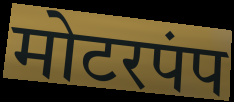
मोटरपंप